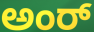
ಅಂರ್